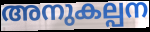
അനുകല്പന